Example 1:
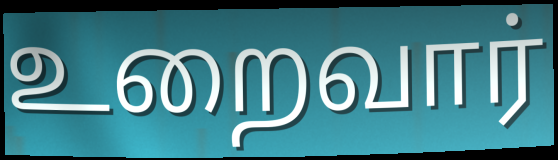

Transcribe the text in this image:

உறைவார்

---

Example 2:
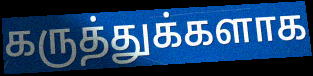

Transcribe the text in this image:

கருத்துக்களாக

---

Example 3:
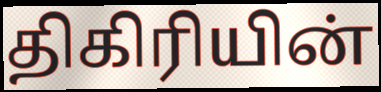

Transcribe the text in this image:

திகிரியின்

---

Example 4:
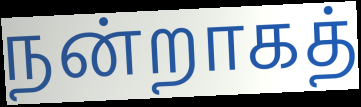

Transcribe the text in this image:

நன்றாகத்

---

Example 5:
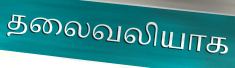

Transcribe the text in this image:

தலைவலியாக